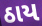
ઠાય